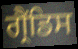
ਗ੍ਰੈਂਡਿਸ